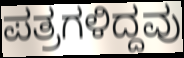
ಪತ್ರಗಳಿದ್ದವು